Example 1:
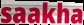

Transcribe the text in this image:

saakha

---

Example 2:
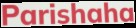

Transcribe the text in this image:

Parishaha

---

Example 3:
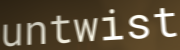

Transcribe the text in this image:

untwist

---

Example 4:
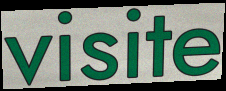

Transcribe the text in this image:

visite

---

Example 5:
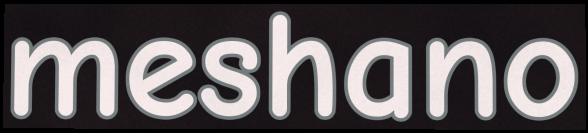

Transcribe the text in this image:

meshano